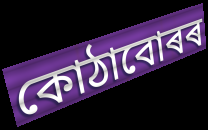
কোঠাবোৰৰ